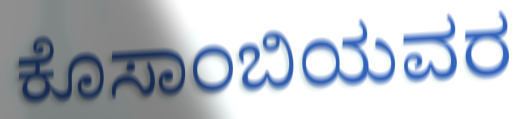
ಕೊಸಾಂಬಿಯವರ